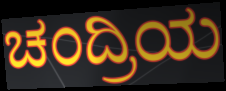
ಚಂದ್ರಿಯ